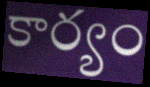
కార్యం